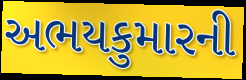
અભયકુમારની